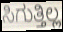
ಸಿಗುತ್ತಿಲ್ಲ